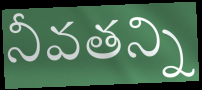
నీవతన్ని